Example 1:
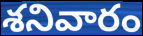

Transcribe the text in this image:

శనివారం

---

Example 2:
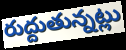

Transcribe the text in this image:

రుద్దుతున్నట్లు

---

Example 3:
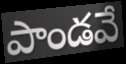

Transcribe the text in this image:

పాండవే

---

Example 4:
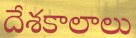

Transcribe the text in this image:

దేశకాలాలు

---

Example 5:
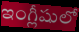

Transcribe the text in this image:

ఇంగ్లీషులో